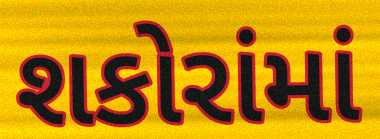
શકોરાંમાં